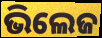
ଭିଲେଜ